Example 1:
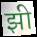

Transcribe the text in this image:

झी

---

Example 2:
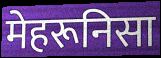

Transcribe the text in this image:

मेहरूनिसा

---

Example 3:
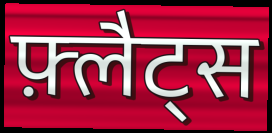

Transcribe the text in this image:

फ़्लैट्स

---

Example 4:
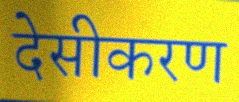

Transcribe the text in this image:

देसीकरण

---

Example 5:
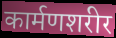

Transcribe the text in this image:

कार्मणशरीर